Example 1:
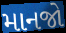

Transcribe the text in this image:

માનજો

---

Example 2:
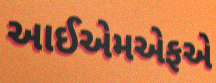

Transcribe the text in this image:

આઈએમએફએ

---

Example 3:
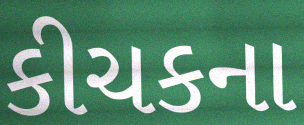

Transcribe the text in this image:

કીચકના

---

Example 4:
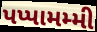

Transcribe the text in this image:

પપ્પામમ્મી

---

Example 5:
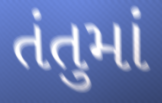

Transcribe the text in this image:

તંતુમાં